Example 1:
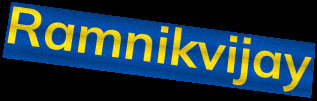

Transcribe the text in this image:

Ramnikvijay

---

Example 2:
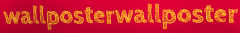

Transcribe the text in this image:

wallposterwallposter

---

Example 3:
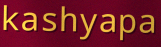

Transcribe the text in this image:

kashyapa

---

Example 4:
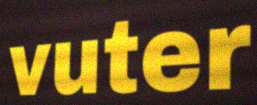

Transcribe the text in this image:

vuter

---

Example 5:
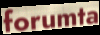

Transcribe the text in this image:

forumta